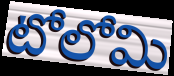
టోలోమి